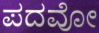
ಪದವೋ